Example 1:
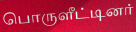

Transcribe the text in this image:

பொருளீட்டினர்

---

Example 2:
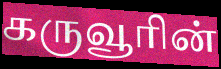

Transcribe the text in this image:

கருவூரின்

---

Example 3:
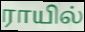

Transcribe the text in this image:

ராயில்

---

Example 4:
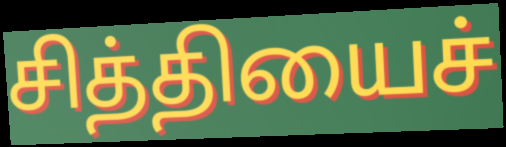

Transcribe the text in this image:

சித்தியைச்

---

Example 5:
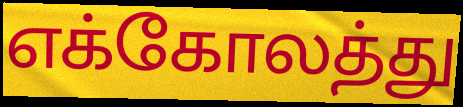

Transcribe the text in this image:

எக்கோலத்து